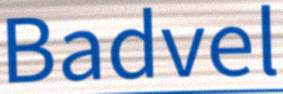
Badvel